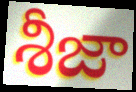
శీజా